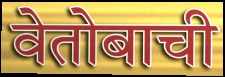
वेतोबाची